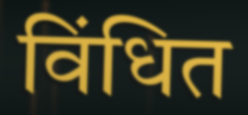
विंधित